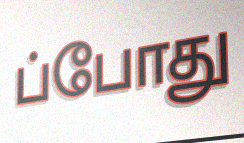
ப்போது